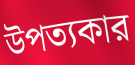
উপত্যকার